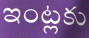
ఇంట్లకు